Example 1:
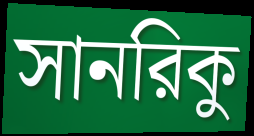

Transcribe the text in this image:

সানরিকু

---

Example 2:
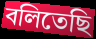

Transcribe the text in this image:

বলিতেছি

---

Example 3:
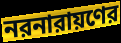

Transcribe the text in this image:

নরনারায়ণের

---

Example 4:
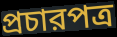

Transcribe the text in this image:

প্রচারপত্র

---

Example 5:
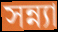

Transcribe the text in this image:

সন্ন্যা